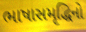
ભાષાસમૃદ્ધિનો